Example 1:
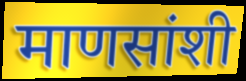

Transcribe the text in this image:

माणसांशी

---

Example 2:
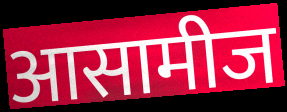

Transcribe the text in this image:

आसामीज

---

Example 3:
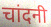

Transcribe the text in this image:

चांदनी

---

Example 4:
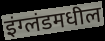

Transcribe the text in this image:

इंग्लंडमधील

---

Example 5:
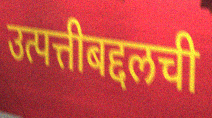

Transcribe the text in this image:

उत्पत्तीबद्दलची